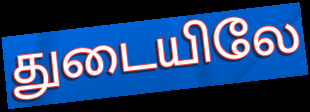
துடையிலே